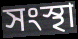
সংস্থা